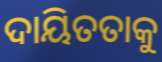
ଦାୟିତତାକୁ